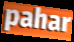
pahar